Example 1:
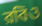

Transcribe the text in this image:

রবিও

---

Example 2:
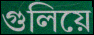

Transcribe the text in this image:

গুলিয়ে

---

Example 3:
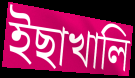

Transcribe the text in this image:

ইছাখালি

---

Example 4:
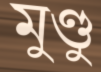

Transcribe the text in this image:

মুণ্ডু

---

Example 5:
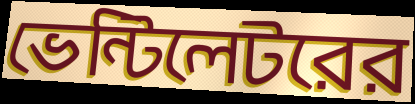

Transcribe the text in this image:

ভেন্টিলেটরের